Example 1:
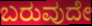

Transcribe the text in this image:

ಬರುವುದೇ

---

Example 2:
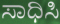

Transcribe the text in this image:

ಸಾಧಿಸಿ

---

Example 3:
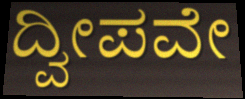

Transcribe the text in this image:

ದ್ವೀಪವೇ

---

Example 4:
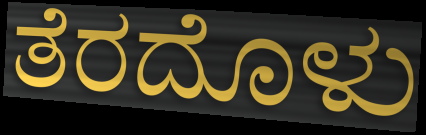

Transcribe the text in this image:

ತೆರದೊಳು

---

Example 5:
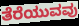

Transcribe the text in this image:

ತೆರೆಯುವವು